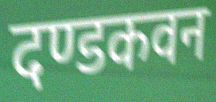
दण्डकवन